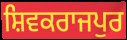
ਸ਼ਿਵਕਰਾਜਪੁਰ